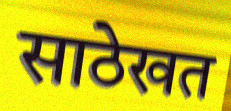
साठेखत